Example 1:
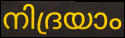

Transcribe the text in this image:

നിദ്രയാം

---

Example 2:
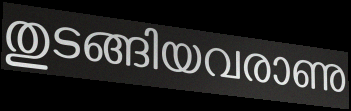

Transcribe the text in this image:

തുടങ്ങിയവരാണു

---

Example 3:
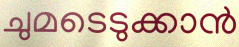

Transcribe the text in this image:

ചുമടെടുക്കാൻ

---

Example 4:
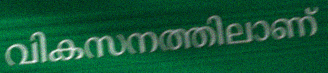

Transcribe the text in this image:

വികസനത്തിലാണ്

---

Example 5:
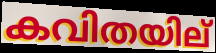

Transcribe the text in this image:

കവിതയില്